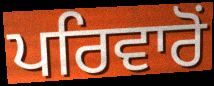
ਪਰਿਵਾਰੋਂ